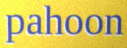
pahoon